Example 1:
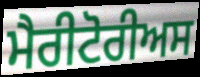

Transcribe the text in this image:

ਮੈਰੀਟੋਰੀਅਸ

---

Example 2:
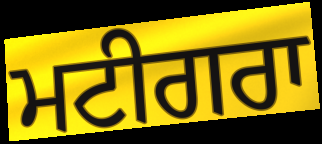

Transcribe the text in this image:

ਮਟੀਗਰਾ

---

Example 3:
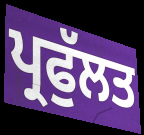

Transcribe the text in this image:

ਪ੍ਰਫੁੱਲਤ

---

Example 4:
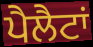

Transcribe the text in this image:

ਪੈਲੈਟਾਂ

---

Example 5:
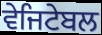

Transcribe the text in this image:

ਵੇਜਿਟੇਬਲ